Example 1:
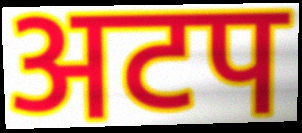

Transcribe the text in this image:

अटप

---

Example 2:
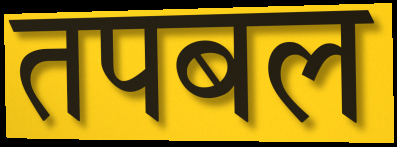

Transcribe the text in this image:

तपबल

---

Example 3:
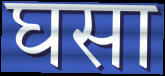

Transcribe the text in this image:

घसा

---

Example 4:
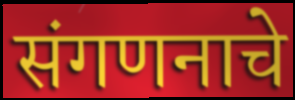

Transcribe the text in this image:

संगणनाचे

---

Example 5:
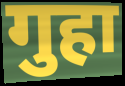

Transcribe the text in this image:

गुहा